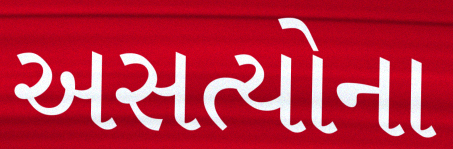
અસત્યોના